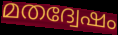
മതദ്വേഷം